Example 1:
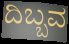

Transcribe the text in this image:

ದಿಬ್ಬವ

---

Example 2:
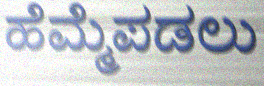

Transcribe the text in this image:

ಹೆಮ್ಮೆಪಡಲು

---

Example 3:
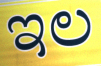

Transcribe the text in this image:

ಇಲ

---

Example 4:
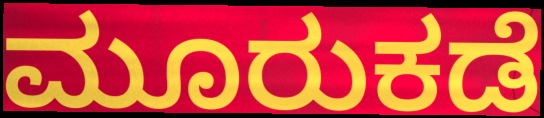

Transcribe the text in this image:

ಮೂರುಕಡೆ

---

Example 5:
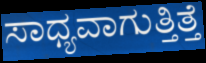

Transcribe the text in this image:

ಸಾಧ್ಯವಾಗುತ್ತಿತ್ತೆ